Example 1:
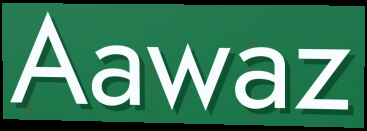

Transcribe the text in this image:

Aawaz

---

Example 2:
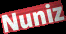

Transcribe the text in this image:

Nuniz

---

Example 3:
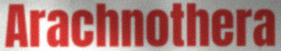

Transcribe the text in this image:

Arachnothera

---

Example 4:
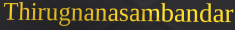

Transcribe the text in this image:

Thirugnanasambandar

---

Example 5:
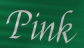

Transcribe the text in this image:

Pink